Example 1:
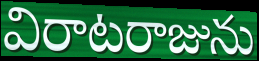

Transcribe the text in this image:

విరాటరాజును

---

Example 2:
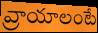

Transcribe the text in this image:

వ్రాయాలంటే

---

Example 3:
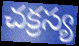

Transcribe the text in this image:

చక్రస్య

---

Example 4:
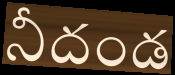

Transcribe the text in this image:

నీదండ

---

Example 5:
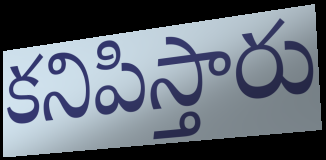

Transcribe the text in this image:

కనిపిస్తారు